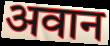
अवान